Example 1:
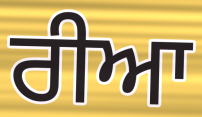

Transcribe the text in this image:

ਰੀਆ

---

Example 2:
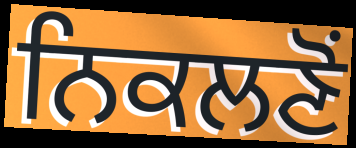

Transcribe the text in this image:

ਨਿਕਲਣੋਂ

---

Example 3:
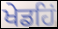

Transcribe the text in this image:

ਖੇਡਹਿਂ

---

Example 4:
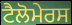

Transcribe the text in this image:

ਟੈਲੋਮੇਰਸ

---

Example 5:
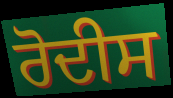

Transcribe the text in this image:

ਰੋਦੀਸ